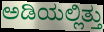
ಅಡಿಯಲ್ಲಿತ್ತು